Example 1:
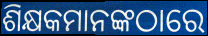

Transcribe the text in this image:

ଶିକ୍ଷକମାନଙ୍କଠାରେ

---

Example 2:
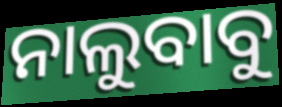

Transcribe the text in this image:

ନାଲୁବାବୁ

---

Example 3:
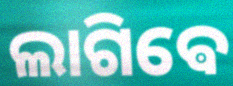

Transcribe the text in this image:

ଲାଗିଵେ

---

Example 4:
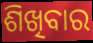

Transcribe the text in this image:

ଶିଖିବାର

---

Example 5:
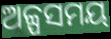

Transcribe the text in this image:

ଅଳ୍ପସମୟ